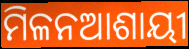
ମିଳନଆଶାୟୀ